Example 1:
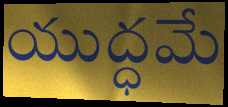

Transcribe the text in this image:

యుద్ధమే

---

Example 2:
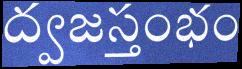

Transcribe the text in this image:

ద్వజస్తంభం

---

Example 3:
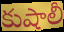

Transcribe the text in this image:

కుషాలీ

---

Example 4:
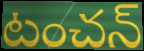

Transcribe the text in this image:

టంచన్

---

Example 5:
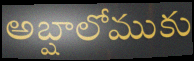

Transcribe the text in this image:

అబ్షాలోముకు